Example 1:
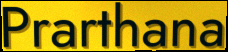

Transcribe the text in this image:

Prarthana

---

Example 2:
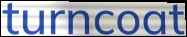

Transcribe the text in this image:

turncoat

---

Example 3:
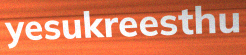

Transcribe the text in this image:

yesukreesthu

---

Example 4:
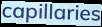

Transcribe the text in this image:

capillaries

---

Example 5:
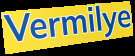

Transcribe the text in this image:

Vermilye